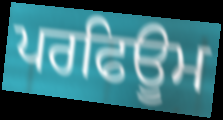
ਪਰਫਿਊਮ